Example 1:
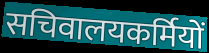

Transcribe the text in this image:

सचिवालयकर्मियों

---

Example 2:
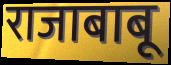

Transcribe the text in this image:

राजाबाबू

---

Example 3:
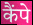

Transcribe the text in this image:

कैंपे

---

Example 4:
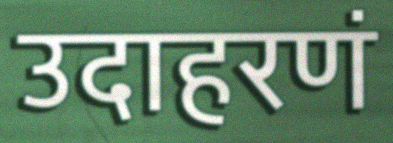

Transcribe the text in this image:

उदाहरणं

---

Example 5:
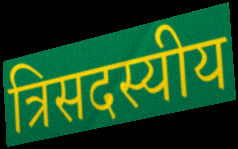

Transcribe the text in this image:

त्रिसदस्यीय